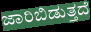
ಜಾರಿಬಿಡುತ್ತದೆ